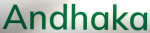
Andhaka